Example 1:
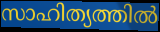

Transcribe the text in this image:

സാഹിത്യത്തിൽ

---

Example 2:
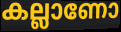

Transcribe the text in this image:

കല്ലാണോ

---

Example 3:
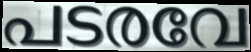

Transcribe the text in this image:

പടരവേ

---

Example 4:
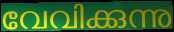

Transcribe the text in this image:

വേവിക്കുന്നു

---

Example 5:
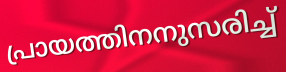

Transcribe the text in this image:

പ്രായത്തിനനുസരിച്ച്